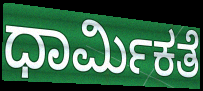
ಧಾರ್ಮಿಕತೆ